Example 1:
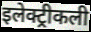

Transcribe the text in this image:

इलेक्ट्रीकली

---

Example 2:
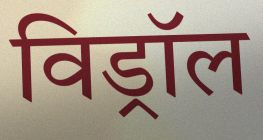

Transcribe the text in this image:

विड्रॉल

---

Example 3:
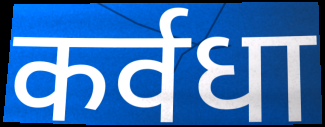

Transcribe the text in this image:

कर्वधा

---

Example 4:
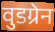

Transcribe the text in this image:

वुडग्रेन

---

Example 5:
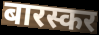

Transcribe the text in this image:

बारस्कर